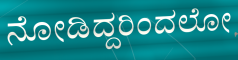
ನೋಡಿದ್ದರಿಂದಲೋ